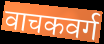
वाचकवर्ग